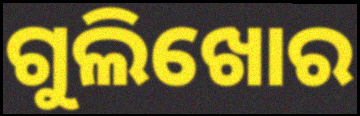
ଗୁଲିଖୋର